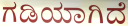
ಗಡಿಯಾಗಿದೆ